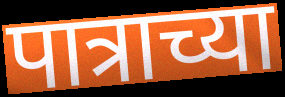
पात्राच्या